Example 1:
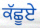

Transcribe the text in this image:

ਕੱਛੂਏ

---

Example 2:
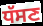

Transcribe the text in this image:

ਧੱਸਣ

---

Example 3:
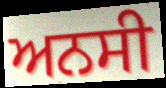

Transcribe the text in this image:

ਅਨਸੀ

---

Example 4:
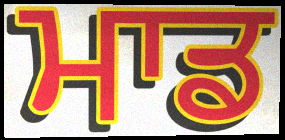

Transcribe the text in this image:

ਮਾਡ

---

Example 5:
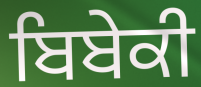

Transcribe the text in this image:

ਬਿਬੇਕੀ